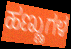
ಹಣ್ಣುಗಳ